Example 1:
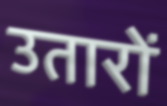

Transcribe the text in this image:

उतारों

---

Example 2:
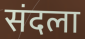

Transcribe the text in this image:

संदला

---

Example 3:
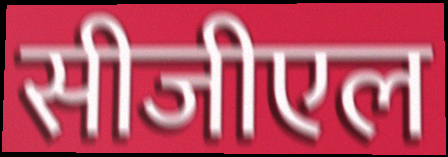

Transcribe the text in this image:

सीजीएल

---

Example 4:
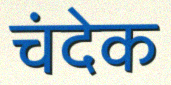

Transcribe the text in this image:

चंदेक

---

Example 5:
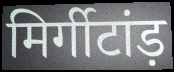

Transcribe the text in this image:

मिर्गीटांड़